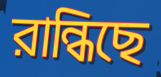
রান্ধিছে